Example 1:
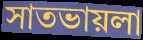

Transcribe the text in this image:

সাতভায়লা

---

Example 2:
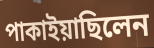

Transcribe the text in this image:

পাকাইয়াছিলেন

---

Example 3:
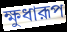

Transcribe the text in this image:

ক্ষুধারূপ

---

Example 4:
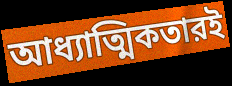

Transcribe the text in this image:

আধ্যাত্মিকতারই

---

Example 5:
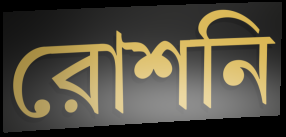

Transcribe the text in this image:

রোশনি